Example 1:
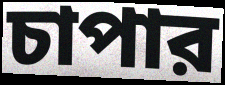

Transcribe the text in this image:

চাপার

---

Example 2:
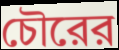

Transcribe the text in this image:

চৌরের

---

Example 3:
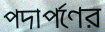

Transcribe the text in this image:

পদার্পণের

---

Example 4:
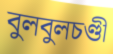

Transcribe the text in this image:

বুলবুলচণ্ডী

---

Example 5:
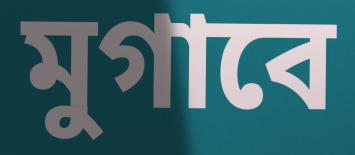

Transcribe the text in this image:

মুগাবে